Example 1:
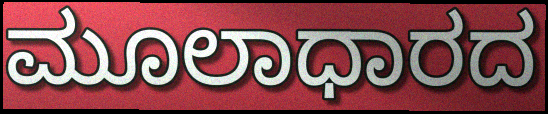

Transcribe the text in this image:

ಮೂಲಾಧಾರದ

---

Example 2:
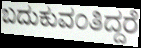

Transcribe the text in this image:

ಬದುಕುವಂತಿದ್ದರೆ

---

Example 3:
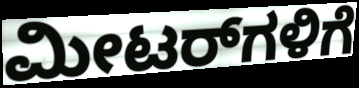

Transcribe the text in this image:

ಮೀಟರ್‌ಗಳಿಗೆ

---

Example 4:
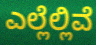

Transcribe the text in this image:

ಎಲ್ಲೆಲ್ಲಿವೆ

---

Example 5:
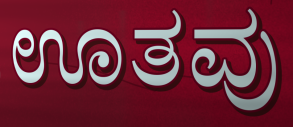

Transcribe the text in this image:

ಊತವು